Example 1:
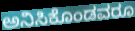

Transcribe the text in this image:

ಅನಿಸಿಕೊಂಡವರೂ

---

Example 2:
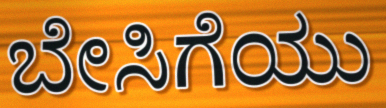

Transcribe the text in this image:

ಬೇಸಿಗೆಯು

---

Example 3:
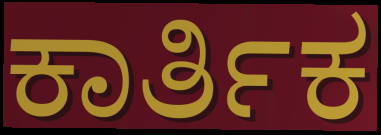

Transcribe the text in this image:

ಕಾರ್ತಿಕ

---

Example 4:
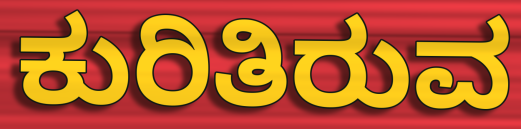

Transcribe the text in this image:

ಕುರಿತಿರುವ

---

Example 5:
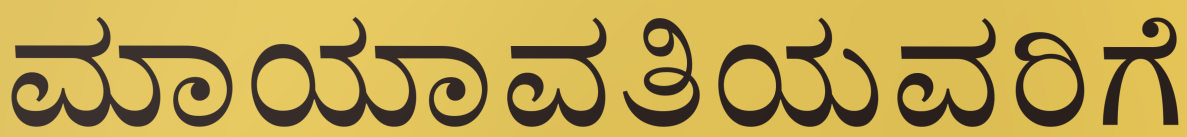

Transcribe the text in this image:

ಮಾಯಾವತಿಯವರಿಗೆ